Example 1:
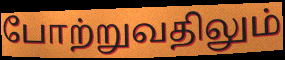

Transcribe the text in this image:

போற்றுவதிலும்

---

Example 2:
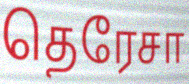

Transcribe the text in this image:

தெரேசா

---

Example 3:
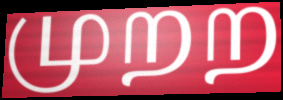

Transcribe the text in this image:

முறற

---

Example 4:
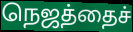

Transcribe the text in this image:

நெஜத்தைச்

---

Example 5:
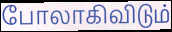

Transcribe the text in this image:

போலாகிவிடும்